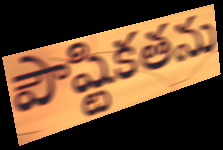
పౌష్టికతను